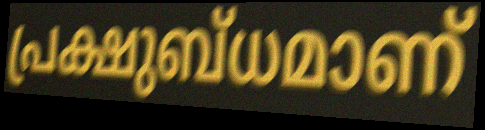
പ്രക്ഷുബ്ധമാണ്